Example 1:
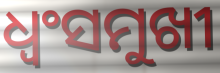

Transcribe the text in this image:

ଧ୍ୱଂସମୁଖୀ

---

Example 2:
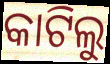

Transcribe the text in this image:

କାଟିଲୁ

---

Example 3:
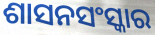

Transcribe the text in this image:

ଶାସନସଂସ୍କାର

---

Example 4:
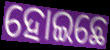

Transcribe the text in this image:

ହୋଇଛେ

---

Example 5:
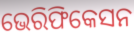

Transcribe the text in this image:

ଭେରିଫିକେସନ